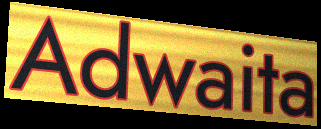
Adwaita